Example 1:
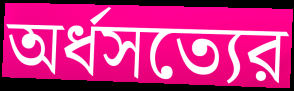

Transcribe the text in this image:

অর্ধসত্যের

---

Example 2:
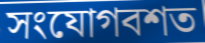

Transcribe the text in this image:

সংযোগবশত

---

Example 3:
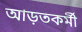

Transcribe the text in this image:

আড়তকর্মী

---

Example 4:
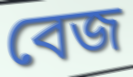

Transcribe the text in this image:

বেজ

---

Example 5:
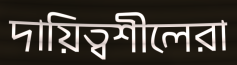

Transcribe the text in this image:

দায়িত্বশীলেরা